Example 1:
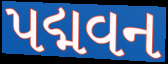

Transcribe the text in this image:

પદ્મવન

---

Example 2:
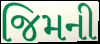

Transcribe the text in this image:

જિમની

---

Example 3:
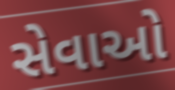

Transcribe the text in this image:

સેવાઓ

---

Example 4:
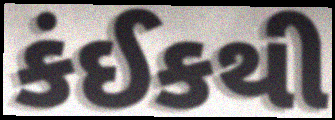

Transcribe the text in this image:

કંઈકથી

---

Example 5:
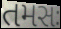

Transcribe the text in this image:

તમસઃ